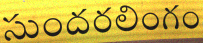
సుందరలింగం